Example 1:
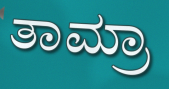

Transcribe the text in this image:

ತಾಮ್ರಾ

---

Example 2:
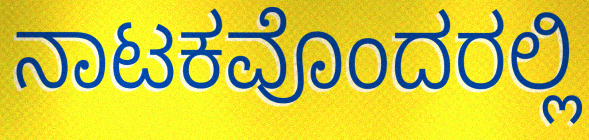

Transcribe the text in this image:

ನಾಟಕವೊಂದರಲ್ಲಿ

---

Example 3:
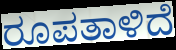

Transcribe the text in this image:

ರೂಪತಾಳಿದೆ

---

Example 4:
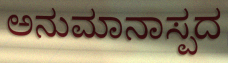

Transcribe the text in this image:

ಅನುಮಾನಾಸ್ಪದ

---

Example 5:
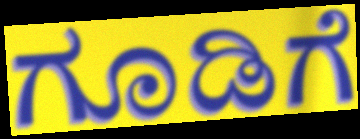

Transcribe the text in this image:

ಗೂಡಿಗೆ